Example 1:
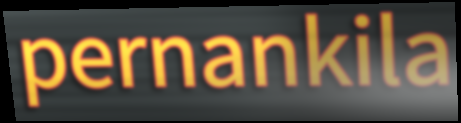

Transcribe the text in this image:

pernankila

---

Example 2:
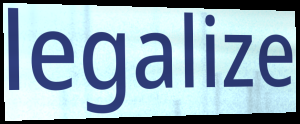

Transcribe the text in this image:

legalize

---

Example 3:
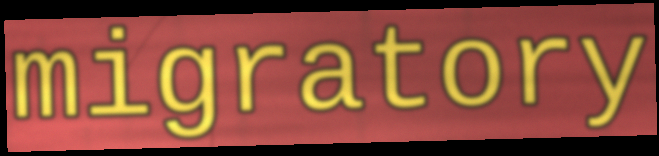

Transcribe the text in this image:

migratory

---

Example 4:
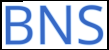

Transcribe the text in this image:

BNS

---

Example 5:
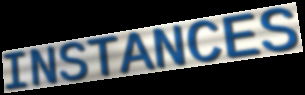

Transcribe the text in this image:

INSTANCES